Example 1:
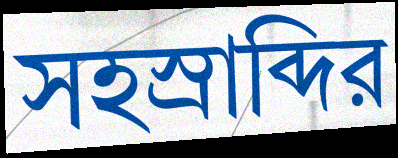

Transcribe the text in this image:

সহস্রাব্দির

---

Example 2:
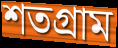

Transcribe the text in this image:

শতগ্রাম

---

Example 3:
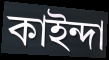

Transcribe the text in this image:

কাইন্দা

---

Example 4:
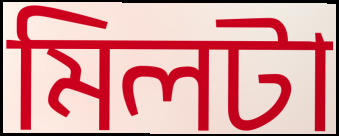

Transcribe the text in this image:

মিলটা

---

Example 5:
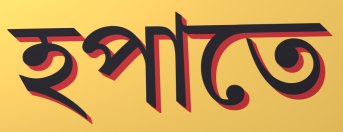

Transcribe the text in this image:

হপাতে